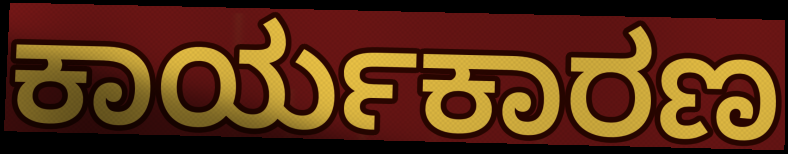
ಕಾರ್ಯಕಾರಣ